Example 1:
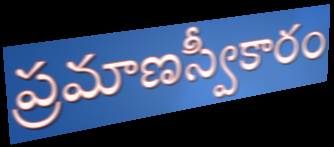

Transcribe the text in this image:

ప్రమాణస్వీకారం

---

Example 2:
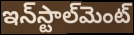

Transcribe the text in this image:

ఇన్‌స్టాల్‌మెంట్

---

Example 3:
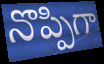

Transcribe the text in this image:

నొప్పిగా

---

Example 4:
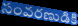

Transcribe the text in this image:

సంవరణుడికి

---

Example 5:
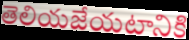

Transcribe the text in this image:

తెలియజేయటానికి